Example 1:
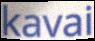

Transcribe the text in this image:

kavai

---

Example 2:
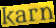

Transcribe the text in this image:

karn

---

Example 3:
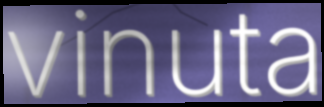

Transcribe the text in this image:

vinuta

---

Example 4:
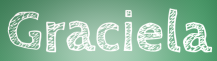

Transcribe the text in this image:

Graciela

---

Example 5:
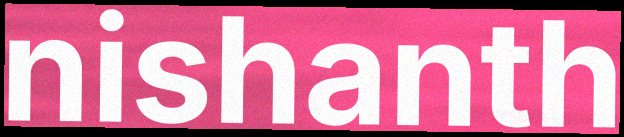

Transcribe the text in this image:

nishanth